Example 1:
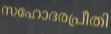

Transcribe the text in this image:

സഹോദരപ്രീതി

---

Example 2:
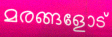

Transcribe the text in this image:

മരങ്ങളോട്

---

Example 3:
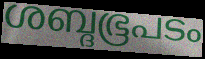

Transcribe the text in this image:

ശബ്ദഭൂപടം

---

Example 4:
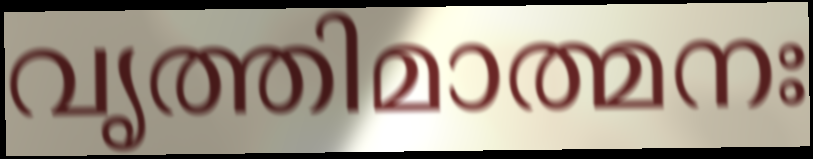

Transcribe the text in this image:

വൃത്തിമാത്മനഃ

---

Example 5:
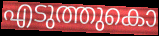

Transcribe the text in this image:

എടുത്തുകൊ